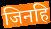
जिनहि